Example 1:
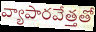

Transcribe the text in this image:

వ్యాపారవేత్తతో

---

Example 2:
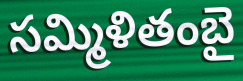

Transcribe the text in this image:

సమ్మిళితంబై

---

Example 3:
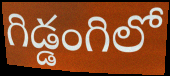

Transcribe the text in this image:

గిడ్డంగిలో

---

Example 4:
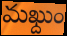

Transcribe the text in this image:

మఖ్దుం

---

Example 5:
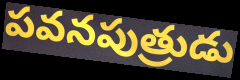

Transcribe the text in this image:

పవనపుత్రుడు